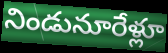
నిండునూరేళ్లూ